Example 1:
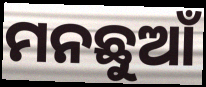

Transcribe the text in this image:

ମନଛୁଆଁ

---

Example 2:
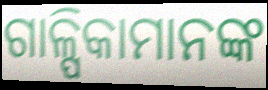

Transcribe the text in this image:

ଗାଳ୍ପିକାମାନଙ୍କ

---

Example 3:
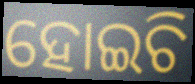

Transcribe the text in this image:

ହୋଇଚି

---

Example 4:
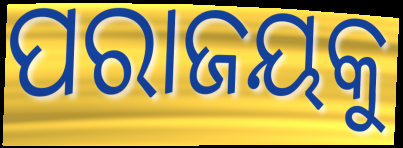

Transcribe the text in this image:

ପରାଜୟକୁ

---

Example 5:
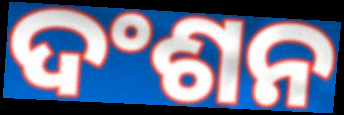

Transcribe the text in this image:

ଦଂଶନ